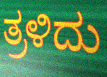
ತ್ರಳಿದು